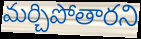
మర్చిపోతారని